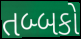
તબ્બકો